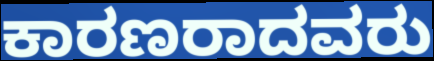
ಕಾರಣರಾದವರು